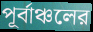
পূর্বাঞ্চলের